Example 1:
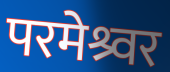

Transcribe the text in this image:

परमेश्र्वर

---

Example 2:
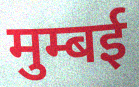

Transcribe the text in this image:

मुम्बई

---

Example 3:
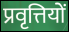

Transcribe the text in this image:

प्रवृत्तियों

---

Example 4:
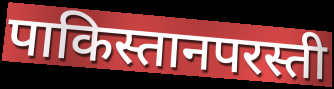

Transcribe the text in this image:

पाकिस्तानपरस्ती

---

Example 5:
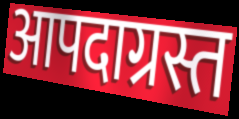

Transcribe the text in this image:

आपदाग्रस्त